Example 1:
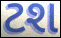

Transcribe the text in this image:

ટશ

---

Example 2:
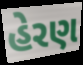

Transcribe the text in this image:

હેરણ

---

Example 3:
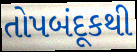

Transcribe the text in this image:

તોપબંદૂકથી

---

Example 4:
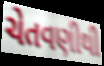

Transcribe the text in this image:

ચેતવણીથી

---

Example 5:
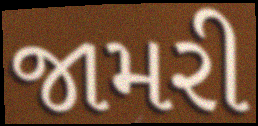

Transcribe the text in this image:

જામરી